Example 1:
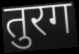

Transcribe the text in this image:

तुरग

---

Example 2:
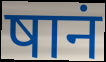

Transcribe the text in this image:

षानं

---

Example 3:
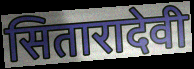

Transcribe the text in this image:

सितारादेवी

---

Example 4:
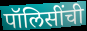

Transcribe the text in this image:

पॉलिसींची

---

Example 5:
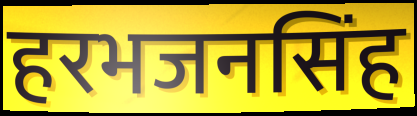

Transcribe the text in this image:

हरभजनसिंह